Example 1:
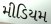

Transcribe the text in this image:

મીડિયમ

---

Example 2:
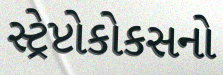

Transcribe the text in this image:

સ્ટ્રેપ્ટોકોકસનો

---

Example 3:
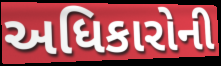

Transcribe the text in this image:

અધિકારોની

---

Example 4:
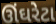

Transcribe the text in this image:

ઊંઘરેટા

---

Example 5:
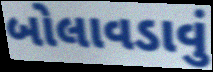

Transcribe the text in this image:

બોલાવડાવું